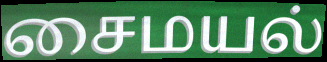
சைமயல்